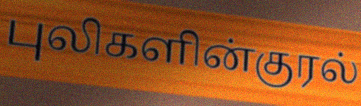
புலிகளின்குரல்